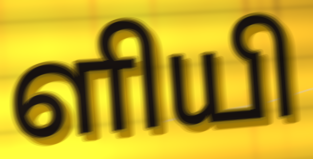
ளியி